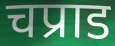
चप्राड